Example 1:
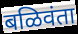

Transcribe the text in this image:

बळिवंता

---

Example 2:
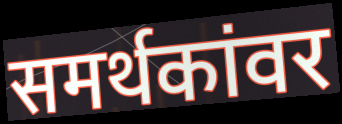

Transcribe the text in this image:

समर्थकांवर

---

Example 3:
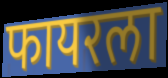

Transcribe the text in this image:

फायरला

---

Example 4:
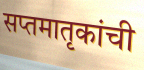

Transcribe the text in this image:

सप्तमातृकांची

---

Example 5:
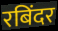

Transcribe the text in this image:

रबिंदर